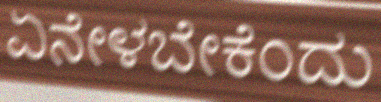
ಏನೇಳಬೇಕೆಂದು